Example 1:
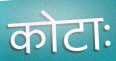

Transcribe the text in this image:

कोटाः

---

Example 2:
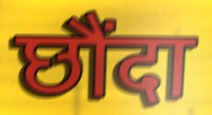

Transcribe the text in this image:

छौंदा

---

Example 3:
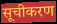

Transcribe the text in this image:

सूचीकरण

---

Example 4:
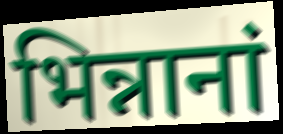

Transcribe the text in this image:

भिन्नानां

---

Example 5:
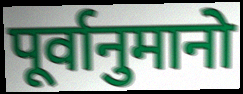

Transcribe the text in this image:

पूर्वानुमानो